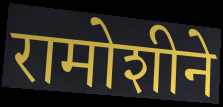
रामोशीने